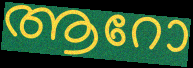
ആറോ